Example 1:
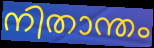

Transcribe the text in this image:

നിതാന്തം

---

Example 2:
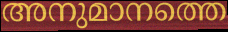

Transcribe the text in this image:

അനുമാനത്തെ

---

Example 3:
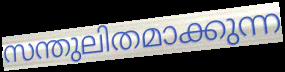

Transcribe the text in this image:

സന്തുലിതമാക്കുന്ന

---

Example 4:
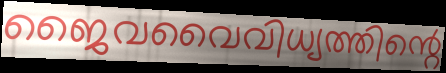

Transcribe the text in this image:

ജൈവവൈവിധ്യത്തിന്റെ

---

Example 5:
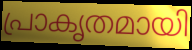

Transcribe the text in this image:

പ്രാകൃതമായി